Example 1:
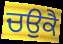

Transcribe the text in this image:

ਚਉਕੈ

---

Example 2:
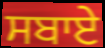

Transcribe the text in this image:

ਸਬਾਏ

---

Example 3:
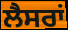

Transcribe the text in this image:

ਲੈਸਰਾਂ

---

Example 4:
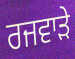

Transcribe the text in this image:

ਰਜਵਾੜੇ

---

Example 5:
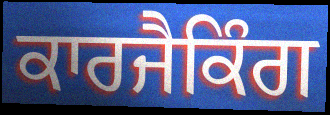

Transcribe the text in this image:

ਕਾਰਜੈਕਿੰਗ